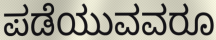
ಪಡೆಯುವವರೂ